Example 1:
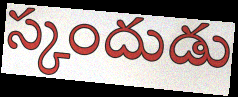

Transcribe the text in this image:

స్కందుడు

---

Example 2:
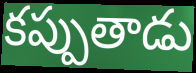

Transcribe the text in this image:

కప్పుతాడు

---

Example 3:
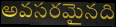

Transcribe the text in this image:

అవసరమైనది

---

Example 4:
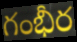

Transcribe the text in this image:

గంభీర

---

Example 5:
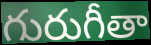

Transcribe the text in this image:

గురుగీతా